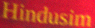
Hindusim